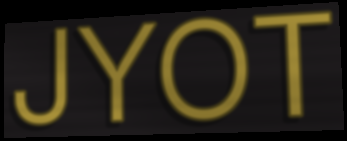
JYOT